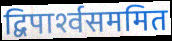
द्विपार्श्वसममित